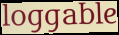
loggable